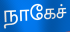
நாகேச்